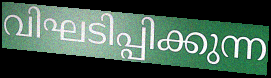
വിഘടിപ്പിക്കുന്ന